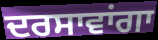
ਦਰਸਾਵਾਂਗਾ